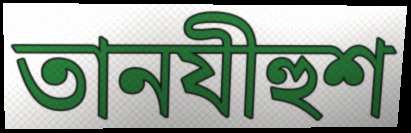
তানযীহুশ